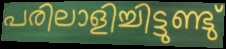
പരിലാളിച്ചിട്ടുണ്ടു്